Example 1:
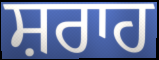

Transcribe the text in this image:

ਸ਼ਰਾਹ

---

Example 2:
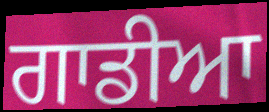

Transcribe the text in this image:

ਗਾਡੀਆ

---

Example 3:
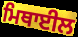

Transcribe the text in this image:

ਮਿਥਾਈਲ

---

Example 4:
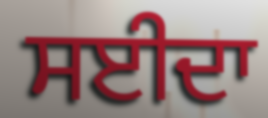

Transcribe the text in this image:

ਸਈਦਾ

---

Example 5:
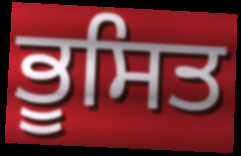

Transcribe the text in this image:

ਭੂਸਿਤ